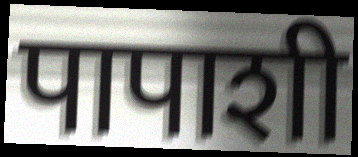
पापाशी